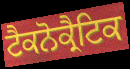
ਟੈਕਨੋਕ੍ਰੈਟਿਕ